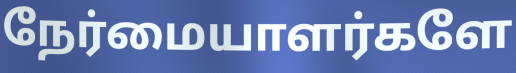
நேர்மையாளர்களே